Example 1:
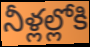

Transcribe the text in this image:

నీళ్లల్లోకి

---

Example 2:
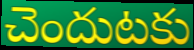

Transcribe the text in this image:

చెందుటకు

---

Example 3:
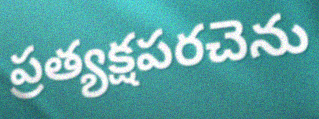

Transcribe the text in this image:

ప్రత్యక్షపరచెను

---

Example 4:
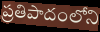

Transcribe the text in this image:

ప్రతిపాదంలోని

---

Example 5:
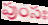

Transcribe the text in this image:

పుంసః